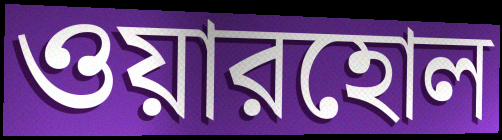
ওয়ারহোল